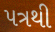
પત્રથી